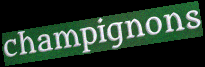
champignons